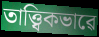
তাত্ত্বিকভাৱে